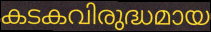
കടകവിരുദ്ധമായ